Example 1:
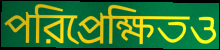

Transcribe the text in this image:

পরিপ্রেক্ষিতও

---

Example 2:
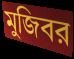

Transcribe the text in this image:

মুজিবর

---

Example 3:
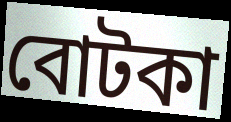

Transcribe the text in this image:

বোটকা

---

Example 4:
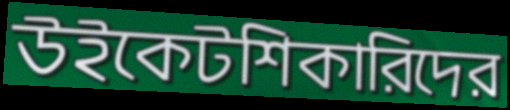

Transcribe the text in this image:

উইকেটশিকারিদের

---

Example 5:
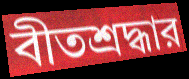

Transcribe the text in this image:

বীতশ্রদ্ধার